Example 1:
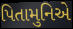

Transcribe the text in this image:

પિતામુનિએ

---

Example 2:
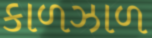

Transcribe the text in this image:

કાળઝાળ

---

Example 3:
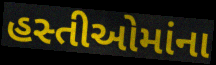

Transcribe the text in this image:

હસ્તીઓમાંના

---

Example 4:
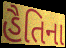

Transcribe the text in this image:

હૈતિના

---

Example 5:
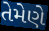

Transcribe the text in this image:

તેમેણે